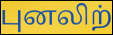
புனலிற்